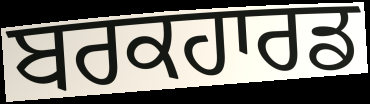
ਬਰਕਹਾਰਡ